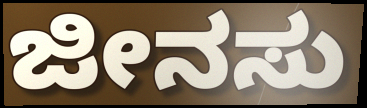
ಜೀನಸು